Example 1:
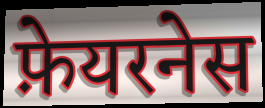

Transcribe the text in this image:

फ़ेयरनेस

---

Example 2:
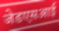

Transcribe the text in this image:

जेडएसआई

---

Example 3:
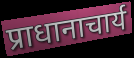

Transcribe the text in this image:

प्राधानाचार्य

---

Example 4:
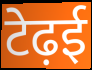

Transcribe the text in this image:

टेढ़ई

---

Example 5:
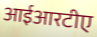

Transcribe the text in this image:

आईआरटीए